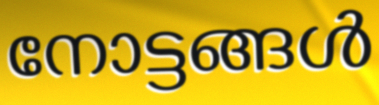
നോട്ടങ്ങൾ